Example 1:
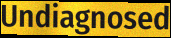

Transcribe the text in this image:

Undiagnosed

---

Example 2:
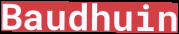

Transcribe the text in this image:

Baudhuin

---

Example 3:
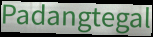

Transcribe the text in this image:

Padangtegal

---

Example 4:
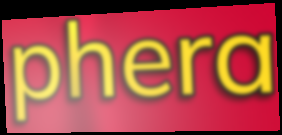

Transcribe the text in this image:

phera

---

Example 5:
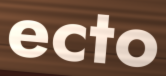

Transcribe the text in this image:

ecto